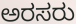
ಅರಸರು